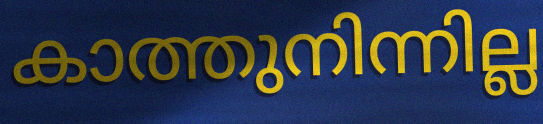
കാത്തുനിന്നില്ല